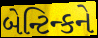
બેન્ટિન્કને